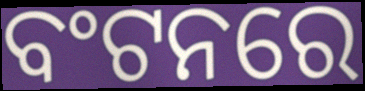
ବଂଟନରେ